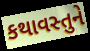
કથાવસ્તુને